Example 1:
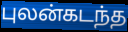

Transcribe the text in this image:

புலன்கடந்த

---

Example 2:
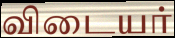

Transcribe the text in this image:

விடையர்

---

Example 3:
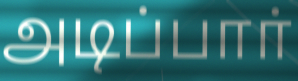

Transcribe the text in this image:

அடிப்பார்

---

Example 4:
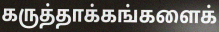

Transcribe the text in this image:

கருத்தாக்கங்களைக்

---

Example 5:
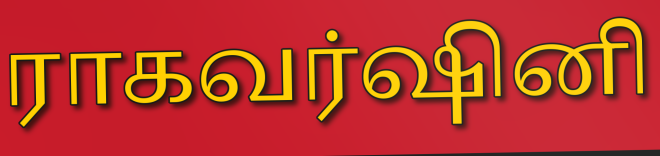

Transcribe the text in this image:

ராகவர்ஷினி